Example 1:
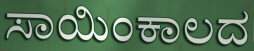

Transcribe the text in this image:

ಸಾಯಿಂಕಾಲದ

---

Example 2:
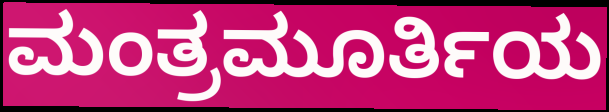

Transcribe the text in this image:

ಮಂತ್ರಮೂರ್ತಿಯ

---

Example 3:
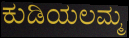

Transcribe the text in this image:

ಕುಡಿಯಲಮ್ಮ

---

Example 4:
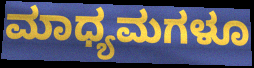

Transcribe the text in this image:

ಮಾಧ್ಯಮಗಳೂ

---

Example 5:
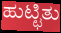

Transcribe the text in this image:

ಹುಟ್ಟಿತು